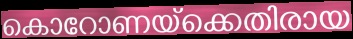
കൊറോണയ്‌ക്കെതിരായ